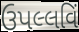
ઉપલ્લવિં